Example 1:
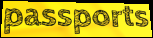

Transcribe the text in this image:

passports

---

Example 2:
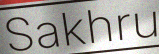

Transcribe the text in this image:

Sakhru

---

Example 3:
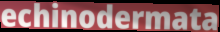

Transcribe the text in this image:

echinodermata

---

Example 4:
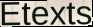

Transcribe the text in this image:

Etexts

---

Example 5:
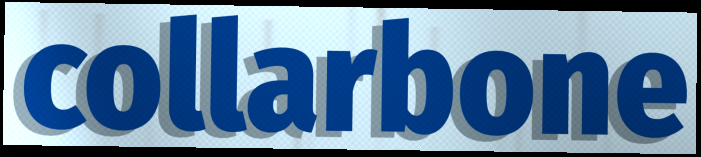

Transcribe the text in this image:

collarbone